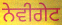
ਨੇਵੀਗੇਟ